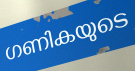
ഗണികയുടെ